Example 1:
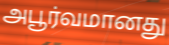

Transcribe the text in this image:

அபூர்வமானது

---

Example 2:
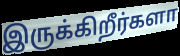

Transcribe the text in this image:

இருக்கிறீர்களா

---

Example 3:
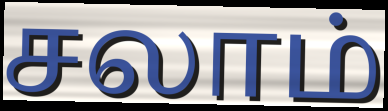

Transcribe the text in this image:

சலாம்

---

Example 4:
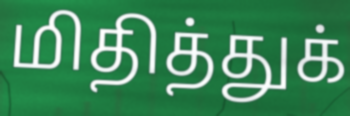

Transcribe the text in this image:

மிதித்துக்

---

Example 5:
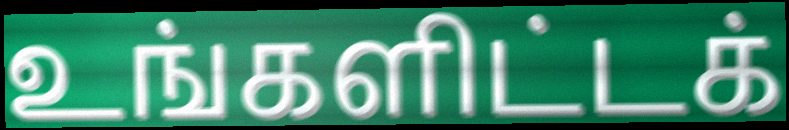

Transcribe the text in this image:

உங்களிட்டக்